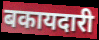
बकायदारी